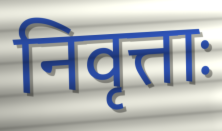
निवृत्ताः